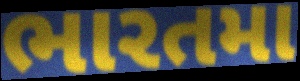
ભારતમા